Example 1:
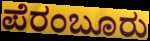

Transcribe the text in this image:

ಪೆರಂಬೂರು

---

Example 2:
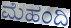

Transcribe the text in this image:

ಮೆಹಂದಿ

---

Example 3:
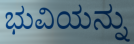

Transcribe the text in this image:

ಭುವಿಯನ್ನು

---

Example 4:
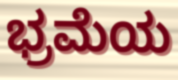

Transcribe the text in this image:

ಭ್ರಮೆಯ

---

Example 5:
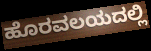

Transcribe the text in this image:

ಹೊರವಲಯದಲ್ಲಿ